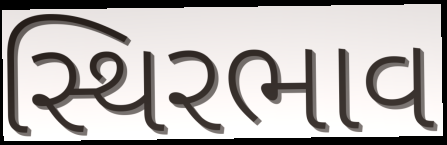
સ્થિરભાવ